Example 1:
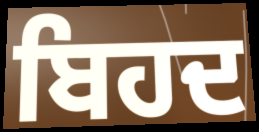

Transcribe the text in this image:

ਬਿਹਦ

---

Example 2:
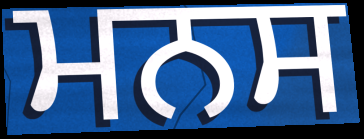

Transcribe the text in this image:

ਮਨਸ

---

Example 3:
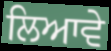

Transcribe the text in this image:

ਲਿਆਵੇ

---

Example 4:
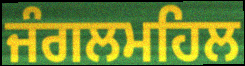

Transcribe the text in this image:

ਜੰਗਲਮਹਿਲ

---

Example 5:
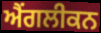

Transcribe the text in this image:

ਐਂਗਲੀਕਨ